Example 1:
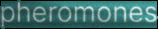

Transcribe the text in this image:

pheromones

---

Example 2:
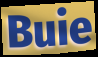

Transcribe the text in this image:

Buie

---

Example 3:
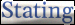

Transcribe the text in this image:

Stating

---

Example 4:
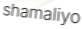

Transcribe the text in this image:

shamaliyo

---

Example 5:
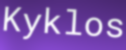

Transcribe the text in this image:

Kyklos